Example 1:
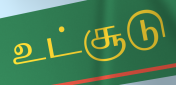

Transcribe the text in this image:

உட்சூடு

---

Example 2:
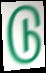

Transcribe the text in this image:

டு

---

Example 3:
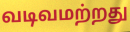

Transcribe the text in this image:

வடிவமற்றது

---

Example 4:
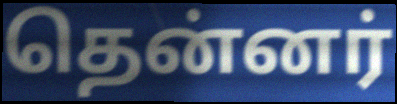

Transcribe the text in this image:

தென்னர்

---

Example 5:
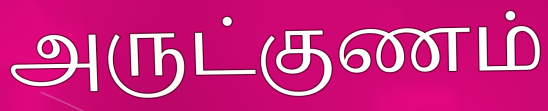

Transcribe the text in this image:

அருட்குணம்